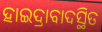
ହାଇଦ୍ରାବାଦସ୍ଥିତ